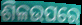
ଶିଳଉପରେ